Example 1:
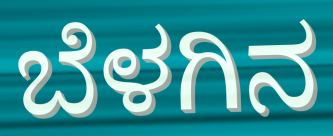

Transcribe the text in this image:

ಬೆಳಗಿನ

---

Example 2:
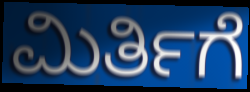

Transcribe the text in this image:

ಮಿರ್ತಿಗೆ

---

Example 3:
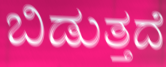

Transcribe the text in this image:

ಬಿಡುತ್ತದೆ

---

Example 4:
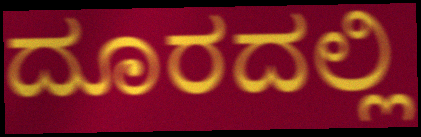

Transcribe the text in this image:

ದೂರದಲ್ಲಿ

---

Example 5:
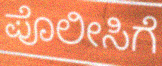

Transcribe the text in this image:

ಪೊಲೀಸಿಗೆ